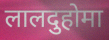
लालदुहोमा